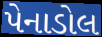
પેનાડોલ